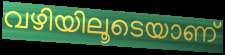
വഴിയിലൂടെയാണ്